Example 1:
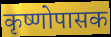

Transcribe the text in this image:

कृष्णोपासक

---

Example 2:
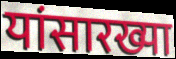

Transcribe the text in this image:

यांसारख्‍या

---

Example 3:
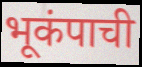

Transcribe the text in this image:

भूकंपाची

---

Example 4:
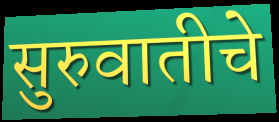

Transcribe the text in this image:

सुरुवातीचे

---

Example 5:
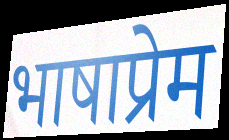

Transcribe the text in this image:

भाषाप्रेम